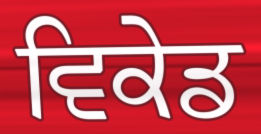
ਵਿਕੇਡ